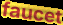
faucet